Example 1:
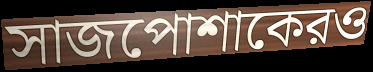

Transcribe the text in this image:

সাজপোশাকেরও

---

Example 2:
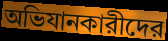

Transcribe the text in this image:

অভিযানকারীদের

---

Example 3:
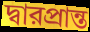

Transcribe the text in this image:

দ্বারপ্রান্ত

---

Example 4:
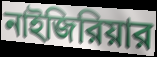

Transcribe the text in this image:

নাইজিরিয়ার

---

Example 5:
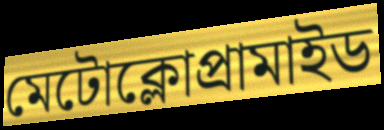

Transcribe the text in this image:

মেটোক্লোপ্রামাইড